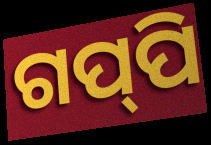
ଗପ୍‌ପି